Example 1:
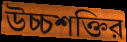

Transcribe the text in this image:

উচ্চশক্তির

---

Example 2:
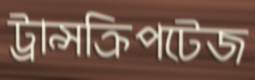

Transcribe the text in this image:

ট্রান্সক্রিপটেজ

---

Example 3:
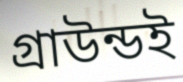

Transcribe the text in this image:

গ্রাউন্ডই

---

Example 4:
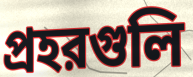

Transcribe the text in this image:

প্রহরগুলি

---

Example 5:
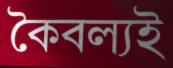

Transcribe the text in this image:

কৈবল্যই